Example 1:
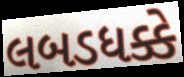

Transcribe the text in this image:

લબડધક્કે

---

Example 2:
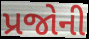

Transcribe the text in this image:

પ્રજોની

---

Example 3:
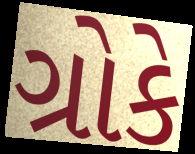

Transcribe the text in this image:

ગ્રોકે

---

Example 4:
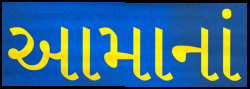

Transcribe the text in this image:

આમાનાં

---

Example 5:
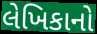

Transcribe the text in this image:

લેખિકાનો